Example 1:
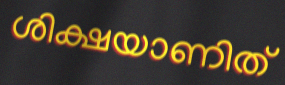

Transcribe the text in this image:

ശിക്ഷയാണിത്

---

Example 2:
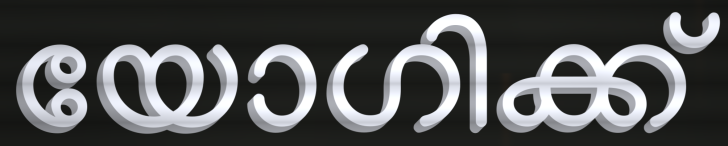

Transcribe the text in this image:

യോഗിക്ക്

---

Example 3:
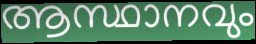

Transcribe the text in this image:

ആസ്ഥാനവും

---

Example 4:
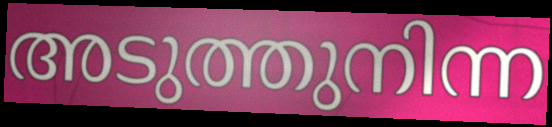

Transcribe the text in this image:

അടുത്തുനിന്ന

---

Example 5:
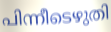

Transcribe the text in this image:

പിന്നീടെഴുതി